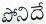
పోనిదే